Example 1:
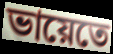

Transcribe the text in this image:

ভায়েতে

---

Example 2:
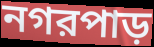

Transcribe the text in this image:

নগরপাড়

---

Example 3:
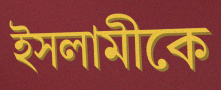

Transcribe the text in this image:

ইসলামীকে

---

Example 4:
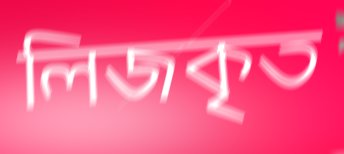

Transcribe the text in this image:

লিজকৃত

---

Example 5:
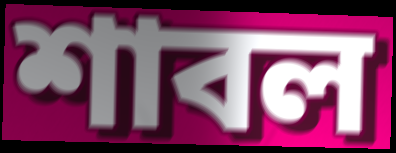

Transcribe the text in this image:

শাবল